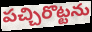
పచ్చిరొట్టను